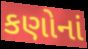
કણોનાં